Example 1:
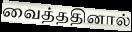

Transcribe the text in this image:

வைத்ததினால்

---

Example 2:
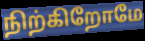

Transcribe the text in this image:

நிற்கிறோமே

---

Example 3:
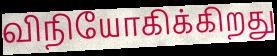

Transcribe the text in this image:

விநியோகிக்கிறது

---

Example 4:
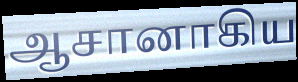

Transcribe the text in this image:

ஆசானாகிய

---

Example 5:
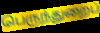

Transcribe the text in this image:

பெருந்துறைப்